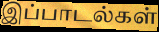
இப்பாடல்கள்